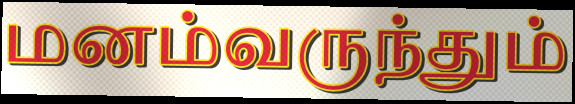
மனம்வருந்தும்